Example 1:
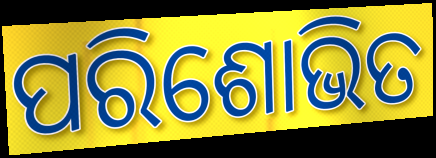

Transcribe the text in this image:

ପରିଶୋଭିତ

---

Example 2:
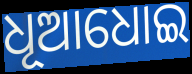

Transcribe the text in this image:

ଧୂଆଧୋଇ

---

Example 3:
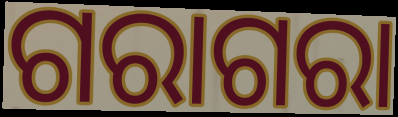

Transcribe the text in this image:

ଗରାଗରା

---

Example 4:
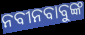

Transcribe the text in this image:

ନବୀନବାବୁଙ୍କ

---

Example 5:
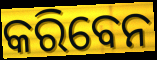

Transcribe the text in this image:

କରିବେନ